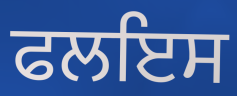
ਫਲਇਸ